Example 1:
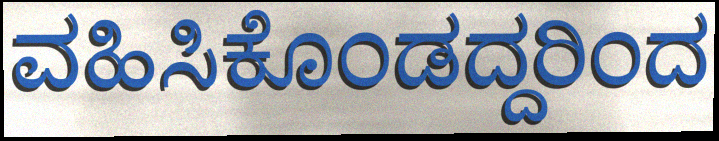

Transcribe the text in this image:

ವಹಿಸಿಕೊಂಡದ್ದರಿಂದ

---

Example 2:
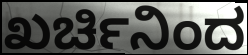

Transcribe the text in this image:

ಖರ್ಚಿನಿಂದ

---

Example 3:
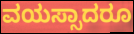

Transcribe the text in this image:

ವಯಸ್ಸಾದರೂ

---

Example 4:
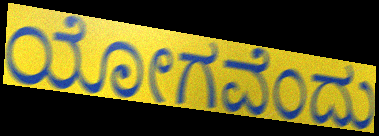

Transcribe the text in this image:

ಯೋಗವೆಂದು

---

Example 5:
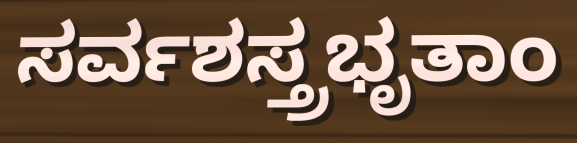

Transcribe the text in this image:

ಸರ್ವಶಸ್ತ್ರಭೃತಾಂ